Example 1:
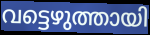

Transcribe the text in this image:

വട്ടെഴുത്തായി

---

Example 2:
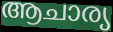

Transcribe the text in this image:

ആചാര്യ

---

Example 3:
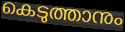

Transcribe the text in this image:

കെടുത്താനും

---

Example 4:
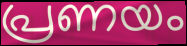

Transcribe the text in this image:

പ്രണയം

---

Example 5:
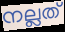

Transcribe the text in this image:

നല്ലത്